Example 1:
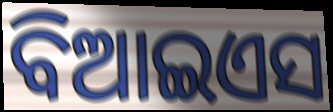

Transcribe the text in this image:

ବିଆଇଏସ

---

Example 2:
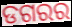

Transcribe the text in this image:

ଡଗରର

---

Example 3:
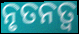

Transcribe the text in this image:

ନୃତନତ୍ୱ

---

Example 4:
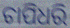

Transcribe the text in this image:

ଚାପିଧରି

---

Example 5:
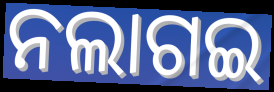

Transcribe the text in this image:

ନଲାଗଇ